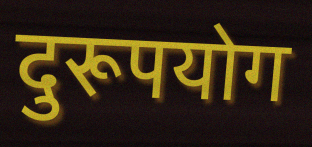
दुरूपयोग